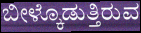
ಬೀಳ್ಕೊಡುತ್ತಿರುವ